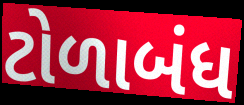
ટોળાબંધ